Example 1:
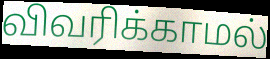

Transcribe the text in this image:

விவரிக்காமல்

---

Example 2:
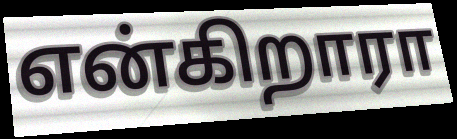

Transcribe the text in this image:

என்கிறாரா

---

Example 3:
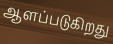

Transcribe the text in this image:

ஆளப்படுகிறது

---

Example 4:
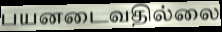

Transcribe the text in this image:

பயனடைவதில்லை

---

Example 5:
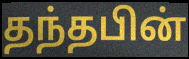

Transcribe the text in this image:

தந்தபின்